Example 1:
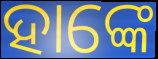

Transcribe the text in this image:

ହାଙ୍କେ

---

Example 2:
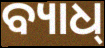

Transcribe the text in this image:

ବ୍ୟାଧ୍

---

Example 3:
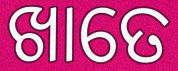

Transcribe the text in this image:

ଖାତେ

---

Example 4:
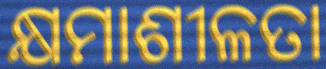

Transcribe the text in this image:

କ୍ଷମାଶୀଳତା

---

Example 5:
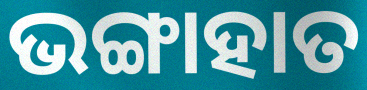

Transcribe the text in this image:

ଭଙ୍ଗାହାତ